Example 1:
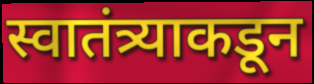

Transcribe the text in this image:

स्वातंत्र्याकडून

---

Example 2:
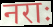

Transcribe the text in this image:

नराः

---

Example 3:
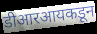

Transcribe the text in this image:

डीआरआयकडून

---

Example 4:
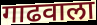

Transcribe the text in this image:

गाढवाला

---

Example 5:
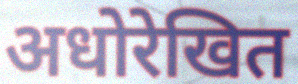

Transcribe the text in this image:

अधोरेखित